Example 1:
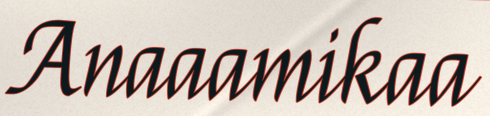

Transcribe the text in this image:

Anaaamikaa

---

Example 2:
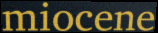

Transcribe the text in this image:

miocene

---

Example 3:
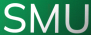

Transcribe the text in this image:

SMU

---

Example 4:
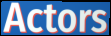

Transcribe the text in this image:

Actors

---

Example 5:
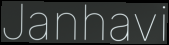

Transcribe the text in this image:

Janhavi